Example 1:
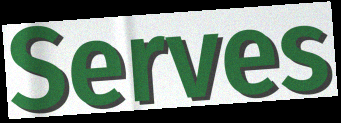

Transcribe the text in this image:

Serves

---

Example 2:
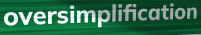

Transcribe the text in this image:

oversimplification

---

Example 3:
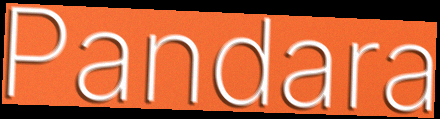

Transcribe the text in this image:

Pandara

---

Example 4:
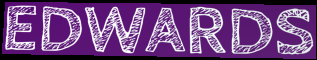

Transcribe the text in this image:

EDWARDS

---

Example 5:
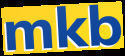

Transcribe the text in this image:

mkb